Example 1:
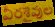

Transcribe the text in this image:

వీరశైవుల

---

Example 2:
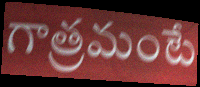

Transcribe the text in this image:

గాత్రమంటే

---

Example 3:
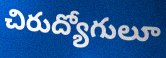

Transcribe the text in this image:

చిరుద్యోగులూ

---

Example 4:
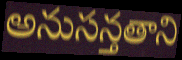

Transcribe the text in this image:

అనుసన్తతాని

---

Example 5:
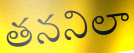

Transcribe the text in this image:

తననిలా